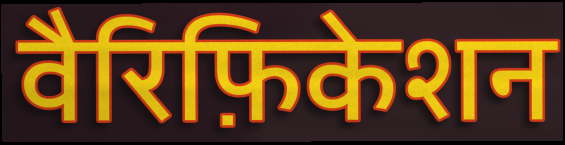
वैरिफ़िकेशन